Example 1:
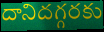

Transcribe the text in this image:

దానిదగ్గరకు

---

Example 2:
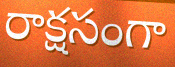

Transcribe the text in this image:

రాక్షసంగా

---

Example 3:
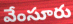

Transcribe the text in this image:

వేంసూరు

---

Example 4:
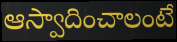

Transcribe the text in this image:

ఆస్వాదించాలంటే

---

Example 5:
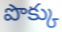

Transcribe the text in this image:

పొక్కు